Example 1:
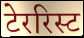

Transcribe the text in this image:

टेररिस्ट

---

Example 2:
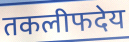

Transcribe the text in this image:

तकलीफदेय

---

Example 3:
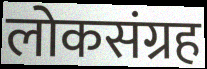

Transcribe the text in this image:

लोकसंग्रह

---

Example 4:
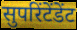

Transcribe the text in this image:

सुपरिंटेंडेंट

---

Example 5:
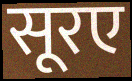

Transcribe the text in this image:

सूरए